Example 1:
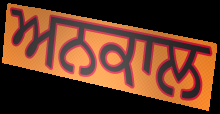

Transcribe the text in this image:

ਅਨਕਾਲ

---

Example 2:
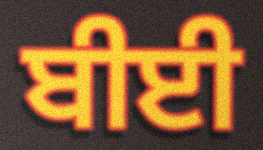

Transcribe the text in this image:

ਬੀਈ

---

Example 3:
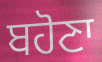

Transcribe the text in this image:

ਬਹੋਣਾ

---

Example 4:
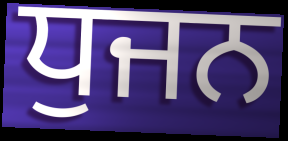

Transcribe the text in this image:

ਧੁਜਨ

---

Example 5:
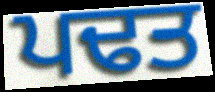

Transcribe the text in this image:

ਪਢਤ